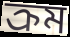
ক্রম